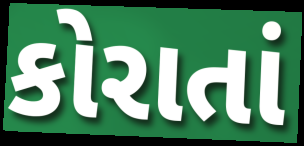
કોરાતાં